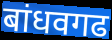
बांधवगढ